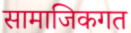
सामाजिकगत